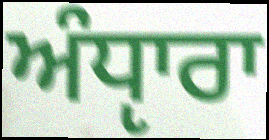
ਅੰਧੵਾਰਾ